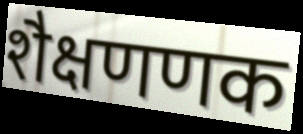
शैक्षणणक